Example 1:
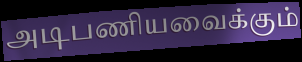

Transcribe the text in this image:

அடிபணியவைக்கும்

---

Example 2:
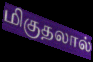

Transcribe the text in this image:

மிகுதலால்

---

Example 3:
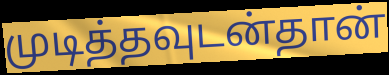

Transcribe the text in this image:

முடித்தவுடன்தான்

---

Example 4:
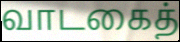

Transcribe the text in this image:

வாடகைத்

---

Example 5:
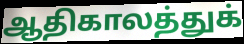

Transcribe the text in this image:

ஆதிகாலத்துக்